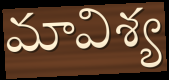
మావిశ్య